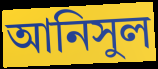
আনিসুল